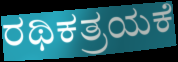
ರಥಿಕತ್ರಯಕೆ